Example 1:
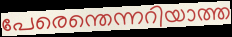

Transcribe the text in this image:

പേരെന്തെന്നറിയാത്ത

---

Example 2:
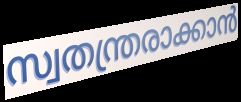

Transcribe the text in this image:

സ്വതന്ത്രരാക്കാൻ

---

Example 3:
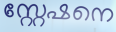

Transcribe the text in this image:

സ്റ്റേഷനെ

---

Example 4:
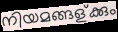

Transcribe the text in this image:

നിയമങ്ങള്ക്കും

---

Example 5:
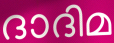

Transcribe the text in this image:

ദാദിമ